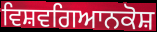
ਵਿਸ਼ਵਗਿਆਨਕੋਸ਼